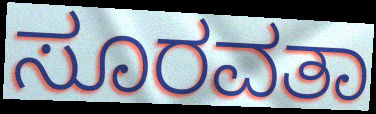
ಸೂರವತಾ